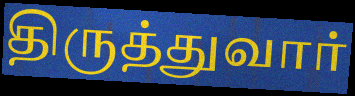
திருத்துவார்